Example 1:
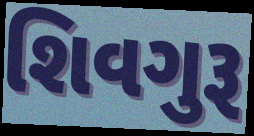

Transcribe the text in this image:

શિવગુરૂ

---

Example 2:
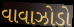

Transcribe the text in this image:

વાવાઝોડો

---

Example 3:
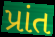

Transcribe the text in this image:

પ્રાંત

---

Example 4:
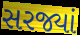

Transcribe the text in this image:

સરજ્યાં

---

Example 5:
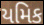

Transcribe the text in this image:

યમિક